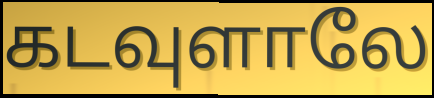
கடவுளாலே